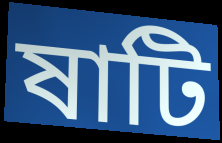
ষাটি